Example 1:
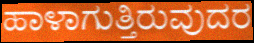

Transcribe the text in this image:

ಹಾಳಾಗುತ್ತಿರುವುದರ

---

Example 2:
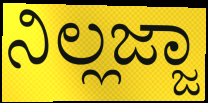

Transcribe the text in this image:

ನಿಲ್ಲಜ್ಜಾ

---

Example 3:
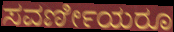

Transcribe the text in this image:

ಸವರ್ಣೀಯರೂ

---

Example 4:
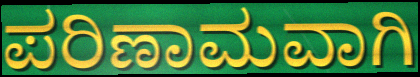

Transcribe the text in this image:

ಪರಿಣಾಮವಾಗಿ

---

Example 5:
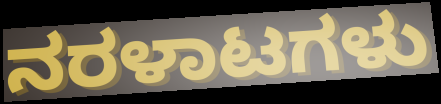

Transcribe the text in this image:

ನರಳಾಟಗಳು